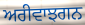
ਅਰੀਵਾਝਗਨ